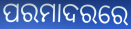
ପରମାଦରରେ